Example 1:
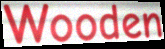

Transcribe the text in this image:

Wooden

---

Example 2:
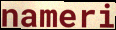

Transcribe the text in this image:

nameri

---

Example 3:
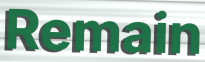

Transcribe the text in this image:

Remain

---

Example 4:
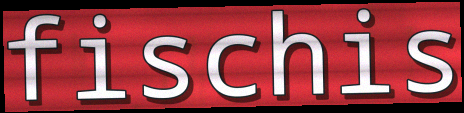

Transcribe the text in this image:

fischis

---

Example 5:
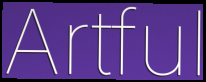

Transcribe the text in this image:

Artful